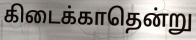
கிடைக்காதென்று